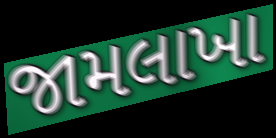
જામલાખા